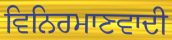
ਵਿਨਿਰਮਾਣਵਾਦੀ